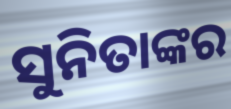
ସୁନିତାଙ୍କର